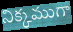
నిక్కముగా